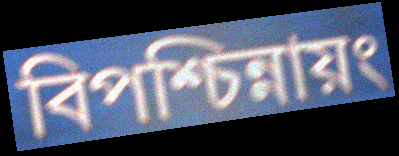
বিপশ্চিন্নায়ং